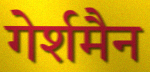
गेर्शमैन